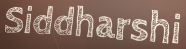
Siddharshi